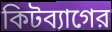
কিটব্যাগের